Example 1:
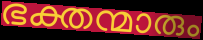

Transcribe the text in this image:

ഭക്തന്മാരും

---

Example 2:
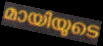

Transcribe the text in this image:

മായിയുടെ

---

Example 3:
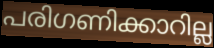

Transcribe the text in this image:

പരിഗണിക്കാറില്ല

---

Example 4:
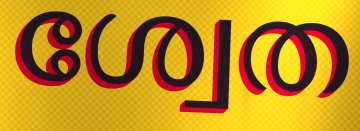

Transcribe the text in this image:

ശ്വേത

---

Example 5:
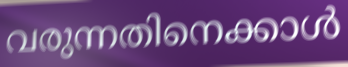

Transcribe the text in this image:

വരുന്നതിനെക്കാൾ